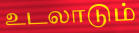
உடலாடும்